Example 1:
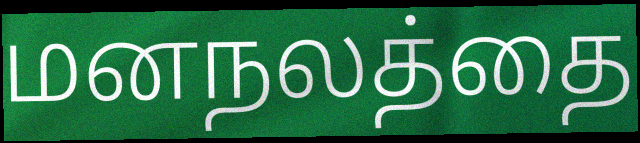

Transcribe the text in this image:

மனநலத்தை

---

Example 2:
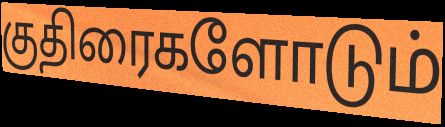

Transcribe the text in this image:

குதிரைகளோடும்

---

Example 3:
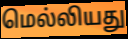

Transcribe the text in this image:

மெல்லியது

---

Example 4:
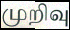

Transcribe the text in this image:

முறிவு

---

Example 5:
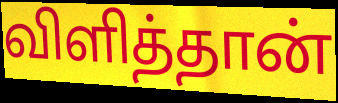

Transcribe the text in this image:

விளித்தான்